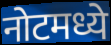
नोटमध्ये